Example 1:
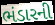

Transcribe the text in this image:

ભંડારની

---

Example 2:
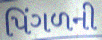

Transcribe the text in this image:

પિંગળની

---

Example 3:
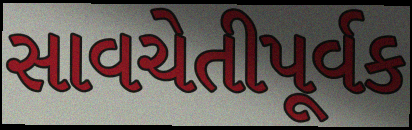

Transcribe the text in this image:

સાવચેતીપૂર્વક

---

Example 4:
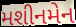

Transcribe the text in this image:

મશીનમેન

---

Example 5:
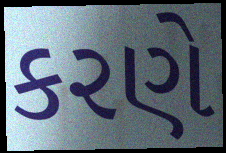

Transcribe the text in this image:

કરણે